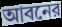
আবনের